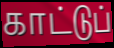
காட்டுப்